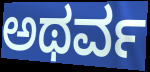
ಅಥರ್ವ